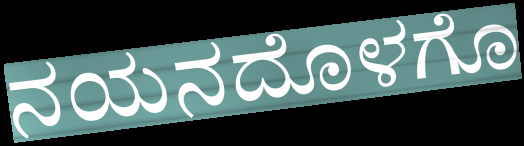
ನಯನದೊಳಗೊ